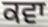
ਕਵਾ